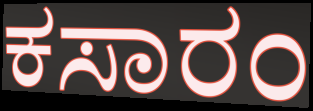
ಕಸಾರಂ